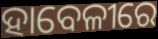
ହାବେଳୀରେ